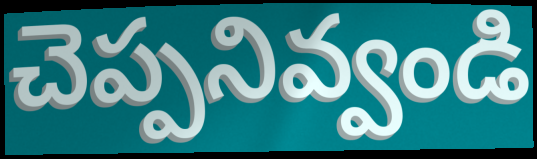
చెప్పనివ్వండి